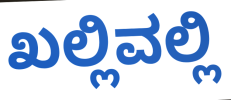
ಖಲ್ಲಿವಲ್ಲಿ